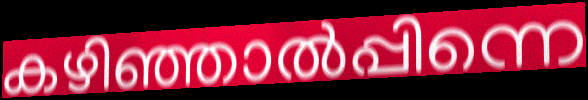
കഴിഞ്ഞാൽപ്പിന്നെ